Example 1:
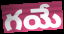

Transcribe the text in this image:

గయే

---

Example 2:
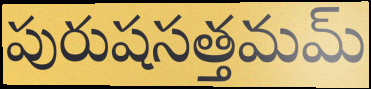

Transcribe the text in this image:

పురుషసత్తమమ్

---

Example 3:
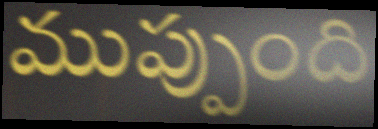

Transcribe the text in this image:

ముప్పుంది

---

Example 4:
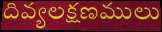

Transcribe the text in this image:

దివ్యలక్షణములు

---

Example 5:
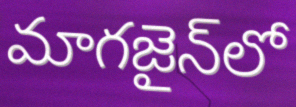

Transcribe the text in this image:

మాగజైన్‌లో